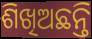
ଶିଖିଅଛନ୍ତି